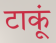
टाकूं